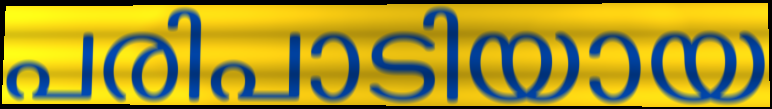
പരിപാടിയായ